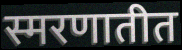
स्मरणातीत